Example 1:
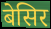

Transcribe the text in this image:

बेसिर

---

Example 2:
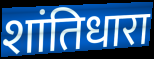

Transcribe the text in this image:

शांतिधारा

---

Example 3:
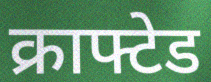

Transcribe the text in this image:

क्राफ्टेड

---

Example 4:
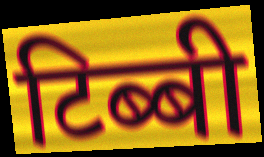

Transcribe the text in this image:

टिब्बी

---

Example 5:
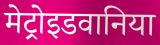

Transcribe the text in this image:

मेट्रोइडवानिया